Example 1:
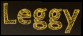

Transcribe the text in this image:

Leggy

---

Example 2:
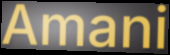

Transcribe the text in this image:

Amani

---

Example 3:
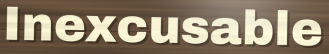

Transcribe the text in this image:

Inexcusable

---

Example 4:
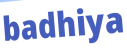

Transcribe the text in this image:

badhiya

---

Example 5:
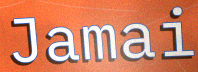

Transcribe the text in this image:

Jamai